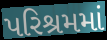
પરિશ્રમમાં